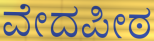
ವೇದಪೀಠ